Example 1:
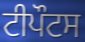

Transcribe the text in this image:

ਟੀਪੌਟਸ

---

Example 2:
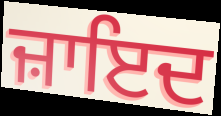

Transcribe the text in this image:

ਜ਼ਾਇਦ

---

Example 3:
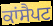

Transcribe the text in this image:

ਕਾਂਸੈਪਟ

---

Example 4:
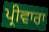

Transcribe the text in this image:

ਪ੍ਰੀਵਾਰਾ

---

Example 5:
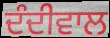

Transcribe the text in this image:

ਦੰਦੀਵਾਲ